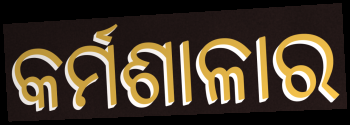
କର୍ମଶାଳାର